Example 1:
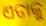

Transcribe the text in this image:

ଏଡାକୁ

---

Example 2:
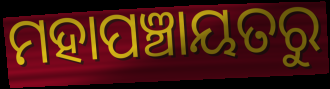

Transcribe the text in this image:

ମହାପଞ୍ଚାୟତରୁ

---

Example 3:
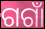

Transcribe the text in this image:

ଗଗାଁ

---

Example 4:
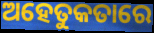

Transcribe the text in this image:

ଅହେତୁକତାରେ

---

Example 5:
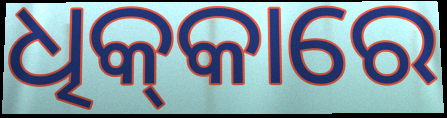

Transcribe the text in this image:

ଧିକ୍‌କାରେ